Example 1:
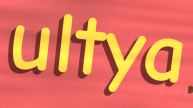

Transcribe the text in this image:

ultya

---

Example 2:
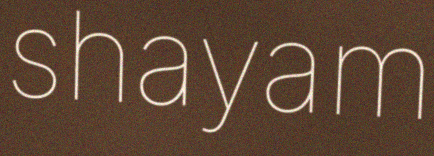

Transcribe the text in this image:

shayam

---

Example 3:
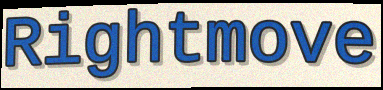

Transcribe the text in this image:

Rightmove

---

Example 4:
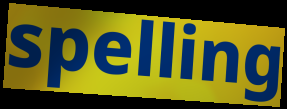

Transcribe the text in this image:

spelling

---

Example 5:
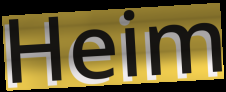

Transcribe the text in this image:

Heim